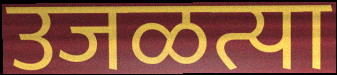
उजळत्या